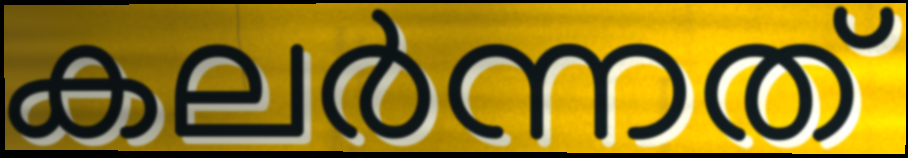
കലർന്നത്